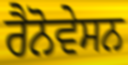
ਰੈਨੋਵੇਸਨ